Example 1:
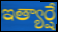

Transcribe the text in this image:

ఇత్యార్షే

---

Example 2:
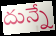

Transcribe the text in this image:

దున్నే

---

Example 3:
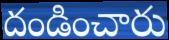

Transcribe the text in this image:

దండించారు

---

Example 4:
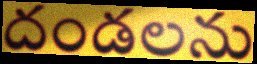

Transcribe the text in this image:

దండలను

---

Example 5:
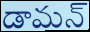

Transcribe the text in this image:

డామన్